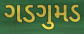
ગડગુમડ